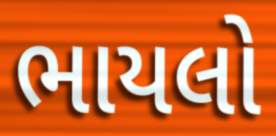
ભાયલો